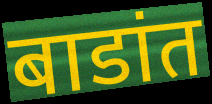
बाडांत